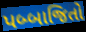
પબ્બાજિતો